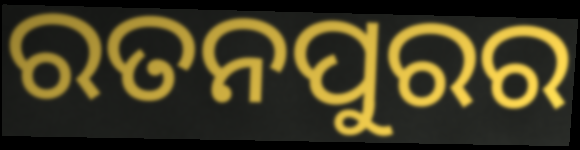
ରତନପୁରର